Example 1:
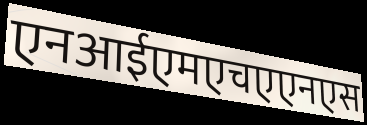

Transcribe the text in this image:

एनआईएमएचएएनएस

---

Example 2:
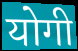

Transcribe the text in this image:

योगी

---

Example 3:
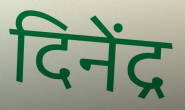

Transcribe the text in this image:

दिनेंद्र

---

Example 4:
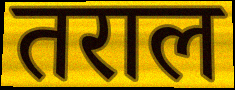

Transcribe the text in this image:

तराल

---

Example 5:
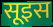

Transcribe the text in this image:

सूइस